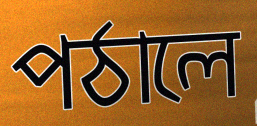
পঠালে